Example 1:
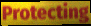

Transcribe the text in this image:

Protecting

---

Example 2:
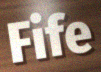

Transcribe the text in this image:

Fife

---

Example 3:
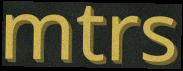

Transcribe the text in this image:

mtrs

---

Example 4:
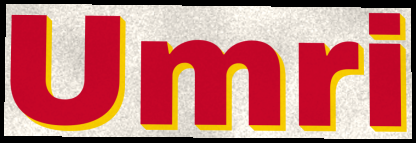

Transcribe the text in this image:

Umri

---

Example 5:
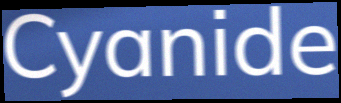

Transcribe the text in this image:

Cyanide